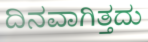
ದಿನವಾಗಿತ್ತದು